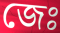
জেঃ